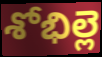
శోభిల్లె